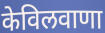
केविलवाणा